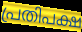
പ്രതിപക്ഷ